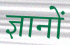
ज्ञानों